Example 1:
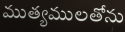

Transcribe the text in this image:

ముత్యములతోను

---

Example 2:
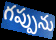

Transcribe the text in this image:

గప్పును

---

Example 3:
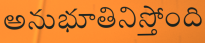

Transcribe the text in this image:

అనుభూతినిస్తోంది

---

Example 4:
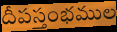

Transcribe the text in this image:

దీపస్తంభముల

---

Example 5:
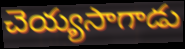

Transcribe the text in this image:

చెయ్యసాగాడు